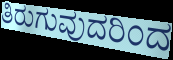
ತಿರುಗುವುದರಿಂದ